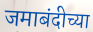
जमाबंदीच्या